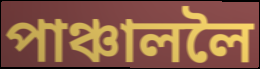
পাঞ্চাললৈ